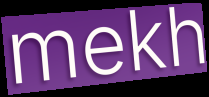
mekh